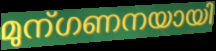
മുന്ഗണനയായി